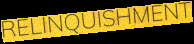
RELINQUISHMENT